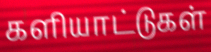
களியாட்டுகள்